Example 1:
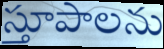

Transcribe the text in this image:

స్తూపాలను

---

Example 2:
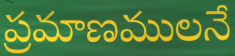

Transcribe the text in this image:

ప్రమాణములనే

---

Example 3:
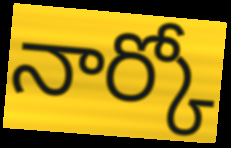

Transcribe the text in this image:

నార్కో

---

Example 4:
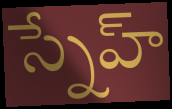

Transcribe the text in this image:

స్నేహ్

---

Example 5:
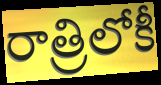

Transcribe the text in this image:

రాత్రిలోకీ